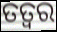
ତତ୍ଵର